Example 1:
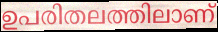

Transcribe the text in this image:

ഉപരിതലത്തിലാണ്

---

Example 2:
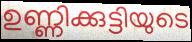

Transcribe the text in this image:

ഉണ്ണിക്കുട്ടിയുടെ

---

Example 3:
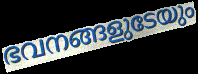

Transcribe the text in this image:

ഭവനങ്ങളുടേയും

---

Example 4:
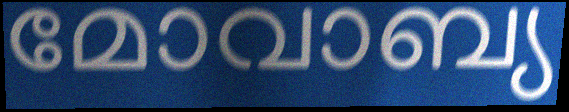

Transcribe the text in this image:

മോവാബ്യ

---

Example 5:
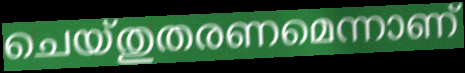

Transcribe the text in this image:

ചെയ്തുതരണമെന്നാണ്